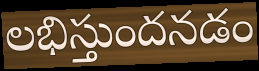
లభిస్తుందనడం